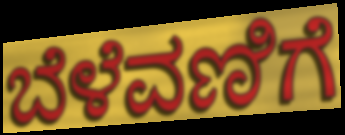
ಬೆಳೆವಣಿಗೆ